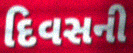
દિવસની